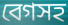
বেগসহ